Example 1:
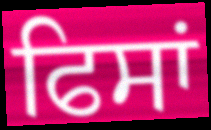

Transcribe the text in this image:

ਫਿਸਾਂ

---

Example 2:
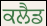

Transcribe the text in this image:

ਕਲੈਡ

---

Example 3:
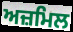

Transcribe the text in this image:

ਅਜ਼ਮਿਲ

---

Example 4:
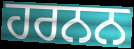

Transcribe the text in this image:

ਹਰਨਨ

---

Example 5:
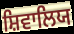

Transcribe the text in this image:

ਸ਼ਿਵਾਲਿਯ